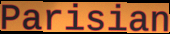
Parisian